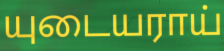
யுடையராய்